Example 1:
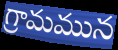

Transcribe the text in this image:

గ్రామమున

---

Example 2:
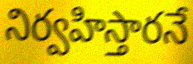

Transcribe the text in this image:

నిర్వహిస్తారనే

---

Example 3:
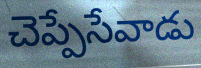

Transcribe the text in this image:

చెప్పేసేవాడు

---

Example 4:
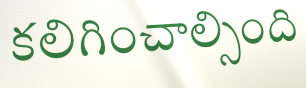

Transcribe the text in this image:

కలిగించాల్సింది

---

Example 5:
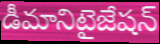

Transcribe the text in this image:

డీమానిటైజేషన్